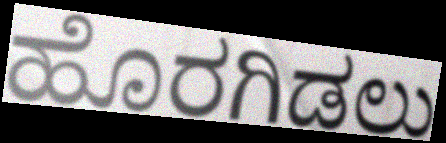
ಹೊರಗಿಡಲು